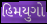
હિમયુગો